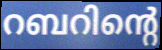
റബറിന്റെ